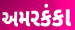
અમરકંકા